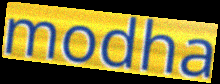
modha